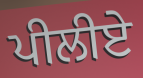
ਪੀਲੀਏ